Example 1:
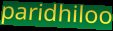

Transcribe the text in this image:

paridhiloo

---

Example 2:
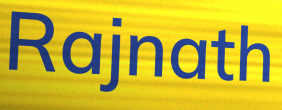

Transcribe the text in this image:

Rajnath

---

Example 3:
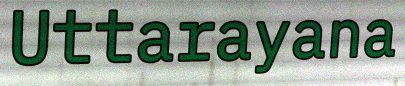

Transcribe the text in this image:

Uttarayana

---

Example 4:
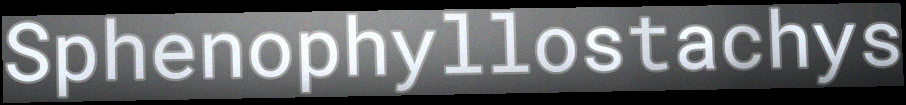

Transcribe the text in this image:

Sphenophyllostachys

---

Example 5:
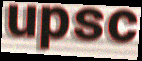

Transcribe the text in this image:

upsc